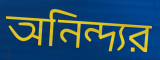
অনিন্দ্যর